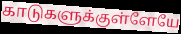
காடுகளுக்குள்ளேயே